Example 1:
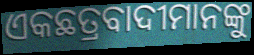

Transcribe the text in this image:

ଏକଛତ୍ରବାଦୀମାନଙ୍କୁ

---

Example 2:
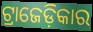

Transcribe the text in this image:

ଟ୍ରାଜେଡ଼ିକାର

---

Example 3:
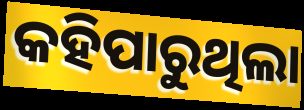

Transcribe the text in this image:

କହିପାରୁଥିଲା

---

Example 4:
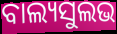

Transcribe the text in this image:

ବାଲ୍ୟସୁଲଭ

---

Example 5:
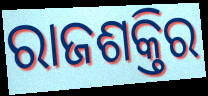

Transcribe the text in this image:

ରାଜଶକ୍ତିର